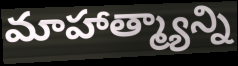
మాహాత్మ్యాన్ని